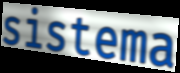
sistema